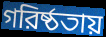
গরিষ্ঠতায়